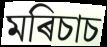
মৰিচাচ